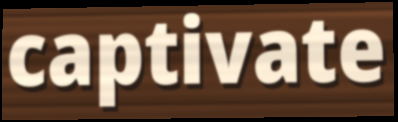
captivate